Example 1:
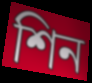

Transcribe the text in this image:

শিন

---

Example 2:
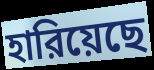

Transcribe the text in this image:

হারিয়েছে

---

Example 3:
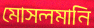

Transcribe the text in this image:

মোসলমানি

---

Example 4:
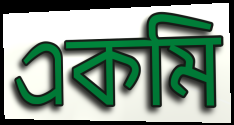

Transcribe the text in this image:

একমি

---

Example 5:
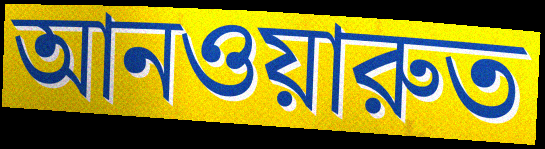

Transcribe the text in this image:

আনওয়ারুত